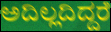
ಅದಿಲ್ಲದಿದ್ದರೆ